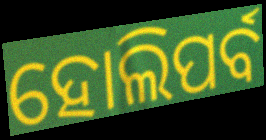
ହୋଲିପର୍ବ